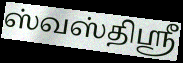
ஸ்வஸ்திஸ்ரீ